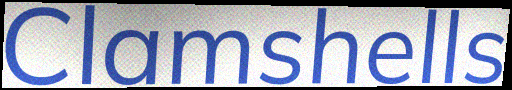
Clamshells